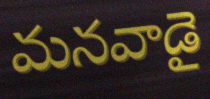
మనవాడై